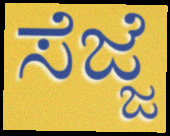
ಸೆಜ್ಜೆ